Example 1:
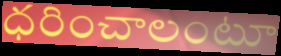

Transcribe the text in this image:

ధరించాలంటూ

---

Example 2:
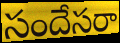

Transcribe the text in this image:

సందేసరా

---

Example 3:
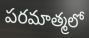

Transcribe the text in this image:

పరమాత్మలో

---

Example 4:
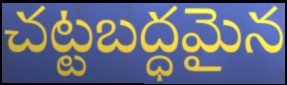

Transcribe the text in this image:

చట్టబద్ధమైన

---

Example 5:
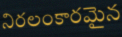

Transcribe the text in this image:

నిరలంకారమైన